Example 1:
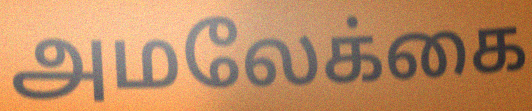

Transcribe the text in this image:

அமலேக்கை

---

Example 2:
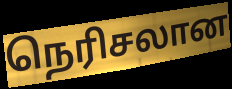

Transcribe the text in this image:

நெரிசலான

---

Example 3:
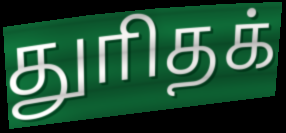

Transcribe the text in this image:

துரிதக்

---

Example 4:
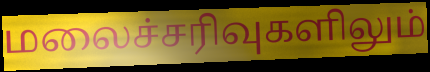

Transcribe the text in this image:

மலைச்சரிவுகளிலும்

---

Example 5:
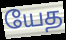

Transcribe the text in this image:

யேத